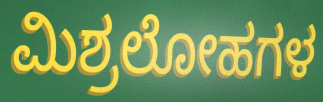
ಮಿಶ್ರಲೋಹಗಳ